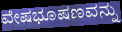
ವೇಷಭೂಷಣವನ್ನು